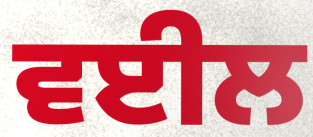
ਵਈਲ